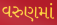
વરુણમાં